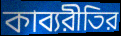
কাব্যরীতির